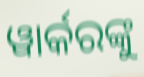
ୱାର୍କରଙ୍କୁ